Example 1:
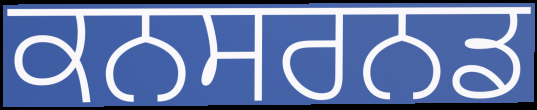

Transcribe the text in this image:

ਕਨਸਰਨਡ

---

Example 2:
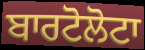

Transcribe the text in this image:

ਬਾਰਟੋਲੋਟਾ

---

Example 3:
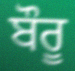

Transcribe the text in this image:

ਬੌਰੂ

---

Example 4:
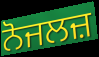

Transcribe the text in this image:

ਨੋਜਲਜ਼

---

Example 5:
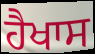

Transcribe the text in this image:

ਹੈਖਾਸ